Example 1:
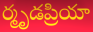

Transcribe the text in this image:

ర్మృడప్రియా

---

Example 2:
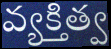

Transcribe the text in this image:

వ్యక్తిత్వ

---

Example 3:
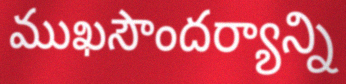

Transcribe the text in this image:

ముఖసౌందర్యాన్ని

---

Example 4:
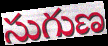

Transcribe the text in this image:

సుగుణ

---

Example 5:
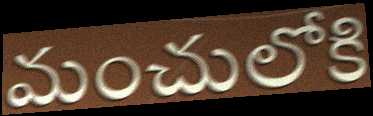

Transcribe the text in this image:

మంచులోకి